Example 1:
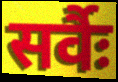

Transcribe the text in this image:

सर्वैः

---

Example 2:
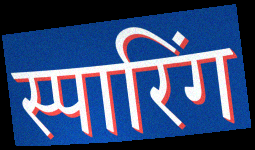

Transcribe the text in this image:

स्पारिंग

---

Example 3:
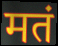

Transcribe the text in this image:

मतं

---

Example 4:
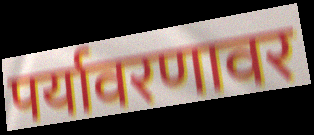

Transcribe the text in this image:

पर्यावरणावर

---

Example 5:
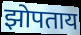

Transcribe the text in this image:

झोपताय